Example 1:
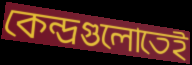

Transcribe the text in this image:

কেন্দ্রগুলোতেই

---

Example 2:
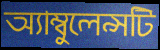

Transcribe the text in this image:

অ্যাম্বুলেন্সটি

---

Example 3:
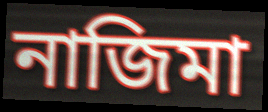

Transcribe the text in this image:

নাজিমা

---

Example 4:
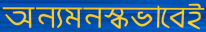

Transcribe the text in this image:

অন্যমনস্কভাবেই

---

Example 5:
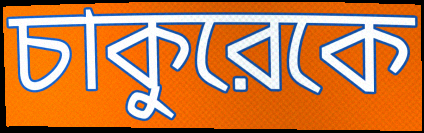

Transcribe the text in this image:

চাকুরেকে